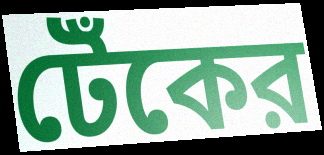
টেঁকের